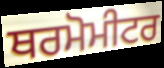
ਥਰਮੋਮੀਟਰ